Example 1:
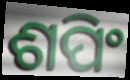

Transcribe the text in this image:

ଶପିଂ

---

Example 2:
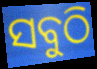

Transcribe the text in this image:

ସବୁଠି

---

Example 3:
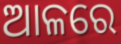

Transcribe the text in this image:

ଆଳରେ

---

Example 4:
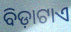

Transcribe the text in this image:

ବିଡ଼ାଟାଏ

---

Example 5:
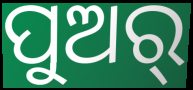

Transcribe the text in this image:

ପୁଅର୍